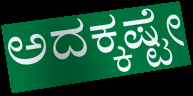
ಅದಕ್ಕಷ್ಟೇ